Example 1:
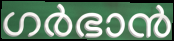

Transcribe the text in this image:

ഗർഭാൻ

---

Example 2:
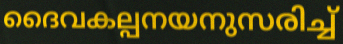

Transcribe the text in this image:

ദൈവകല്പനയനുസരിച്ച്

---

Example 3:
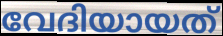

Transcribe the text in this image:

വേദിയായത്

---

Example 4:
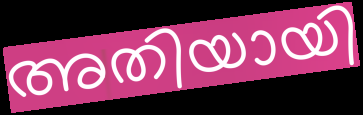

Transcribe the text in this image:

അതിയായി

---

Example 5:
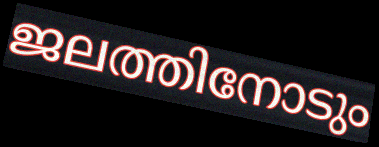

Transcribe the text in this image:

ജലത്തിനോടും